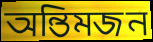
অন্তিমজন